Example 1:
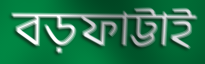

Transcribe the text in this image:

বড়ফাট্টাই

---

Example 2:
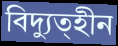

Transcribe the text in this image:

বিদ্যুত্হীন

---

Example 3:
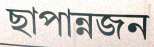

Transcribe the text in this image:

ছাপান্নজন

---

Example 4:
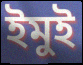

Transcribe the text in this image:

ইমুই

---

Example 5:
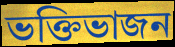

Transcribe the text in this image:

ভক্তিভাজন